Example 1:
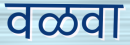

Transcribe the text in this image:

वळवा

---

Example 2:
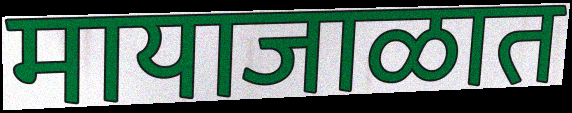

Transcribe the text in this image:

मायाजाळात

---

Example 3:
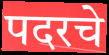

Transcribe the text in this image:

पदरचे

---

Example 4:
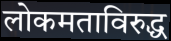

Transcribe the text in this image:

लोकमताविरुद्ध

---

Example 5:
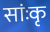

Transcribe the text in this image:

सांःकृ